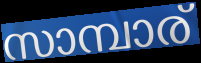
സാമ്പാര്